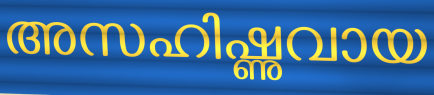
അസഹിഷ്ണുവായ